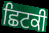
ਛਿਟਕੀ